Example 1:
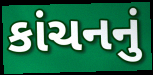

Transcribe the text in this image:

કાંચનનું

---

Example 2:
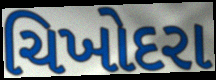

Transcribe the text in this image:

ચિખોદરા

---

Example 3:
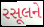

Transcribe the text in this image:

રસૂલને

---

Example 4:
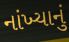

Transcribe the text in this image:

નાંખ્યાનું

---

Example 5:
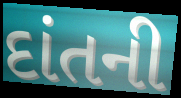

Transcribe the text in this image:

દાંતની